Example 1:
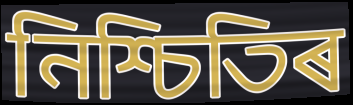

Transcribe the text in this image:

নিশ্চিতিৰ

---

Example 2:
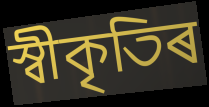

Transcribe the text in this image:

স্বীকৃতিৰ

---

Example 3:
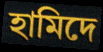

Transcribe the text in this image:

হামিদে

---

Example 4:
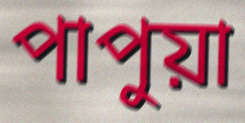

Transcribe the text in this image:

পাপুয়া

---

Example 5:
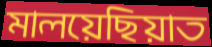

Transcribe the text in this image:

মালয়েছিয়াত